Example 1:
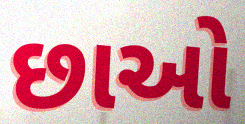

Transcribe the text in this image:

છાઓ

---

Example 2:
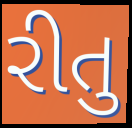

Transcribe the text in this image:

રીતુ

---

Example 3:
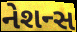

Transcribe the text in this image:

નેશન્સ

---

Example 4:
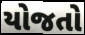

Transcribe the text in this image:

યોજતો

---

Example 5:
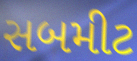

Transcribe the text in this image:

સબમીટ